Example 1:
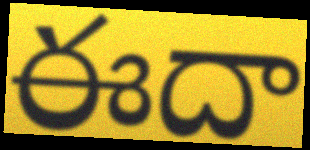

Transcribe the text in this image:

ఈదా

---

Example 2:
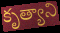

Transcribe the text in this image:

కృత్యాని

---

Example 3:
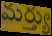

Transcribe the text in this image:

మర్త్యు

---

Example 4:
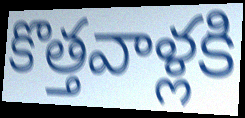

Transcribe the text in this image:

కొత్తవాళ్లకి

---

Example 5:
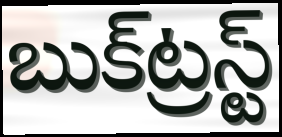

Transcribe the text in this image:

బుక్‌ట్రస్ట్